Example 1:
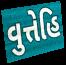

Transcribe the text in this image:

વુત્તેહિ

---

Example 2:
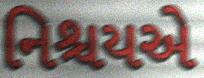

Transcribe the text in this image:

નિશ્ચયએ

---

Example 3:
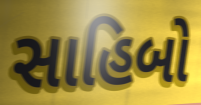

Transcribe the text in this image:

સાહિબો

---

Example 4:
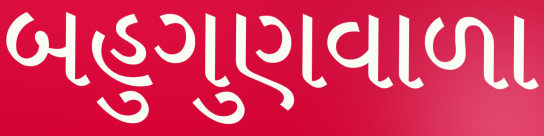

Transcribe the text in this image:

બહુગુણવાળા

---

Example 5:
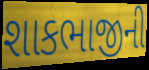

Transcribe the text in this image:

શાકભાજીની